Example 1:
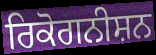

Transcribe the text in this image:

ਰਿਕੋਗਨੀਸ਼ਨ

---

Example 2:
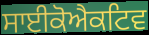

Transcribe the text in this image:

ਸਾਈਕੋਐਕਟਿਵ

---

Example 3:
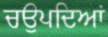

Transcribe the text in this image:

ਚਉਪਦਿਆਂ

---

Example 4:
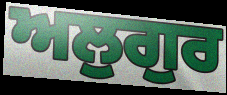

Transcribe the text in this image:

ਅਲੁਗੁਰ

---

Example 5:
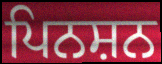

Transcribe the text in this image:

ਪਿਨਸ਼ਨ